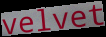
velvet